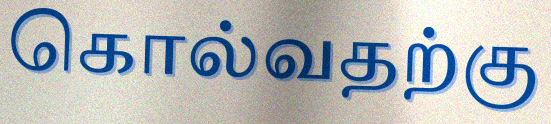
கொல்வதற்கு